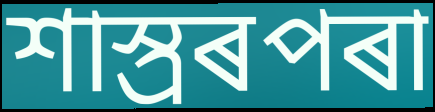
শাস্ত্ৰৰপৰা